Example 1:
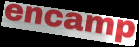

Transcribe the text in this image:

encamp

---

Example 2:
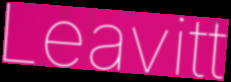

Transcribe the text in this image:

Leavitt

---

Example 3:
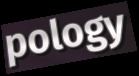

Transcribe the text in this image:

pology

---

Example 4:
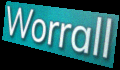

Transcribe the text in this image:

Worrall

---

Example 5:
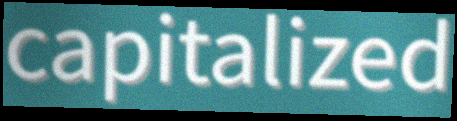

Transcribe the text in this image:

capitalized